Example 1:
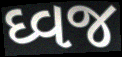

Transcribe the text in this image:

ઘ્વજ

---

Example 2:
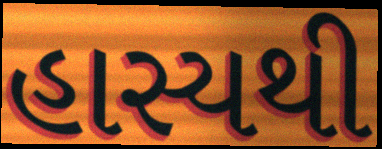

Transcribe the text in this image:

હાસ્યથી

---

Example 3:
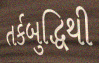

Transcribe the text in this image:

તર્કબુદ્ધિથી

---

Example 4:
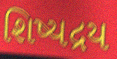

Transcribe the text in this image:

શિષ્યદ્રય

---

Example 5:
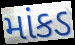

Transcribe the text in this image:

માંકડ